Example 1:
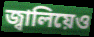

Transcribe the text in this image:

জ্বালিয়েও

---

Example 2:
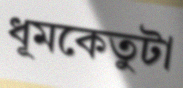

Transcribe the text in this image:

ধূমকেতুটা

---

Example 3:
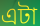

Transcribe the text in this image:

এটা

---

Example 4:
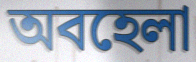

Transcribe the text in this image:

অবহেলা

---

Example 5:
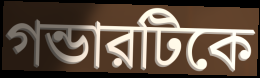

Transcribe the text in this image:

গন্ডারটিকে